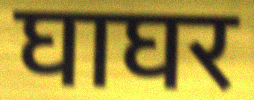
घाघर